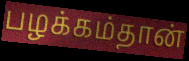
பழக்கம்தான்